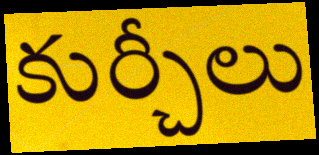
కుర్చీలు